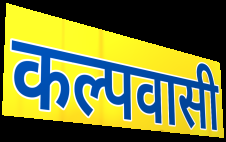
कल्पवासी